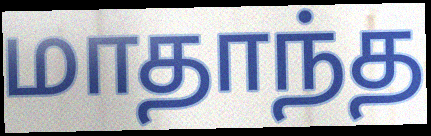
மாதாந்த